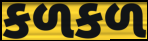
કળકળ